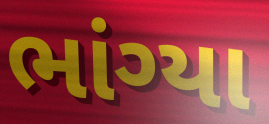
ભાંગ્યા